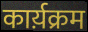
कार्य़क्रम